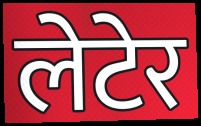
लेटेर